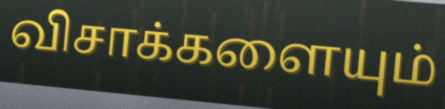
விசாக்களையும்